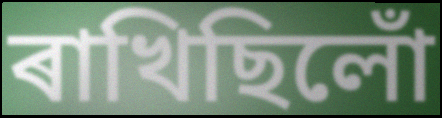
ৰাখিছিলোঁ